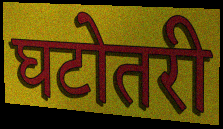
घटोतरी